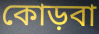
কোড়বা